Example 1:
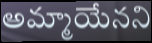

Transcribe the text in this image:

అమ్మాయేనని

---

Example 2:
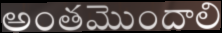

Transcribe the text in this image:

అంతమొందాలి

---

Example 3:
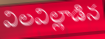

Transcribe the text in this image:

విలవిల్లాడిన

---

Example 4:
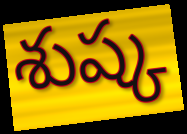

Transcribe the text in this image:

శుష్క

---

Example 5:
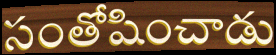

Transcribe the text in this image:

సంతోషించాడు